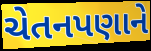
ચેતનપણાને